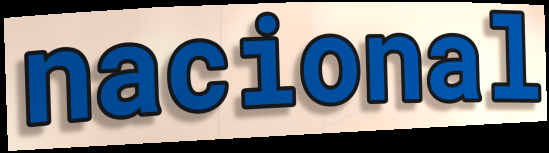
nacional